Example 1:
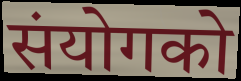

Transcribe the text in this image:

संयोगको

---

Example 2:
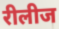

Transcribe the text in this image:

रीलीज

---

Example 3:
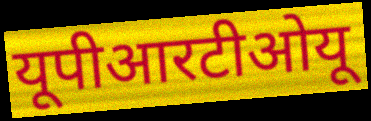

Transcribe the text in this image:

यूपीआरटीओयू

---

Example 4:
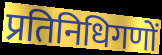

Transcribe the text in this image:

प्रतिनिधिगणों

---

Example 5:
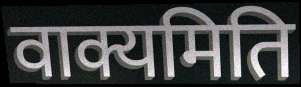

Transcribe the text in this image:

वाक्यमिति